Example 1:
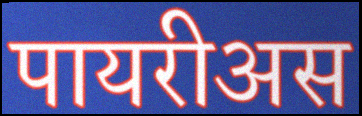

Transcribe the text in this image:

पायरीअस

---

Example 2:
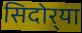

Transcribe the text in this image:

सिदोर्‍या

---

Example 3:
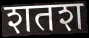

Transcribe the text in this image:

शतश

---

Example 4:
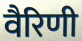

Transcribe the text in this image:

वैरिणी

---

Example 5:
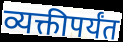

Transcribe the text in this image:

व्यक्तीपर्यंत